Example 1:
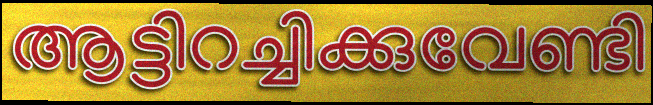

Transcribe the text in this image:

ആട്ടിറച്ചിക്കുവേണ്ടി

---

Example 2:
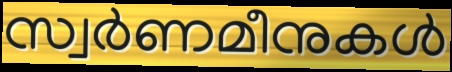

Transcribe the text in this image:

സ്വർണമീനുകൾ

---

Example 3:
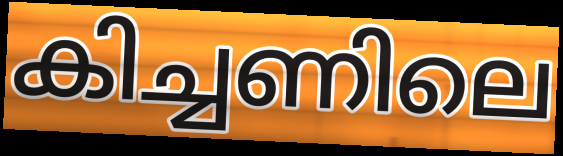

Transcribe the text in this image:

കിച്ചണിലെ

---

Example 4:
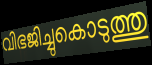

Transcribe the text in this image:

വിഭജിച്ചുകൊടുത്തു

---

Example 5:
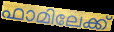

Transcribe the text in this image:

ഫാമിലേക്ക്